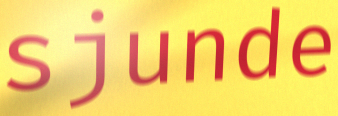
sjunde